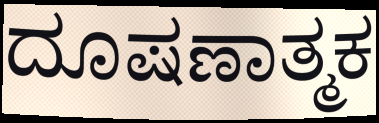
ದೂಷಣಾತ್ಮಕ